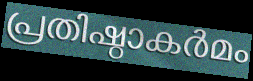
പ്രതിഷ്ഠാകർമം